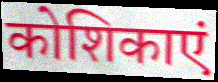
कोशिकाएं